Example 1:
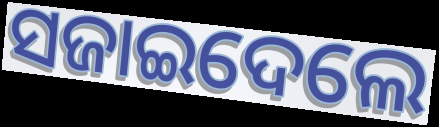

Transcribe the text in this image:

ସଜାଇଦେଲେ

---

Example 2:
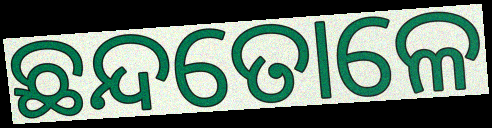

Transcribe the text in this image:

ଛନ୍ଦତୋଳେ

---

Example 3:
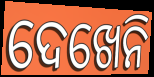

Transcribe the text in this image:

ଦେଖେନି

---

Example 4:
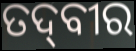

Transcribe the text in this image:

ତଦ୍‌ବୀର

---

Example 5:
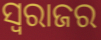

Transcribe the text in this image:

ସ୍ବରାଜର